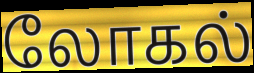
லோகல்